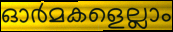
ഓർമകളെല്ലാം